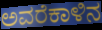
ಅವರೆಕಾಳಿನ